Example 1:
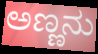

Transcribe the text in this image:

ಅಣ್ಣನು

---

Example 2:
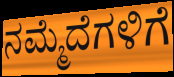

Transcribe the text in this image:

ನಮ್ಮೆದೆಗಳಿಗೆ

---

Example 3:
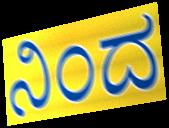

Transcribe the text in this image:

ನಿಂದ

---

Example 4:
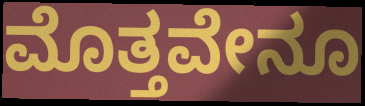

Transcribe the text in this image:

ಮೊತ್ತವೇನೂ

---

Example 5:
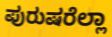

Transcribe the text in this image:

ಪುರುಷರೆಲ್ಲಾ